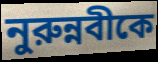
নুরুন্নবীকে